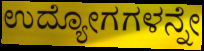
ಉದ್ಯೋಗಗಳನ್ನೇ